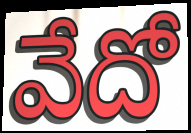
వేదో